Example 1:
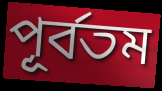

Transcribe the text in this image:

পূর্বতম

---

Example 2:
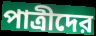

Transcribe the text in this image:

পাত্রীদের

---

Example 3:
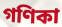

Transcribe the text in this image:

গণিকা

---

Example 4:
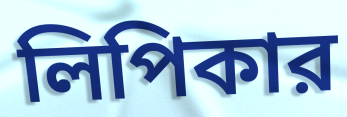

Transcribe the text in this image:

লিপিকার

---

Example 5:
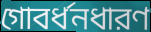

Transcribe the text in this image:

গোবর্ধনধারণ